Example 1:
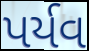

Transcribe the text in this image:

પર્યવ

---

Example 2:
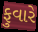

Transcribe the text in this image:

ફુવારે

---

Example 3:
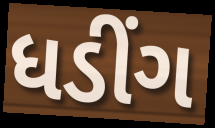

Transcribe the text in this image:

ધડીંગ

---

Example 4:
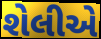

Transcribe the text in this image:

શેલીએ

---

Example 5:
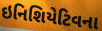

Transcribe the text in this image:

ઇનિશિયેટિવના